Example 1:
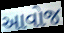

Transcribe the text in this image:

આવોજ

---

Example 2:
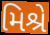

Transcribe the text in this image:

મિશ્રે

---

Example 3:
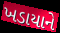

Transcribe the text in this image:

ખડાયાને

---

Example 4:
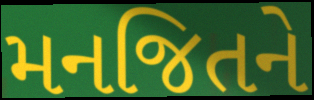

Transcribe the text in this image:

મનજિતને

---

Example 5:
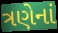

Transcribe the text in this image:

ત્રણેનાં